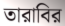
তারাবির